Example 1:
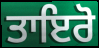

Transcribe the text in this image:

ਤਾਇਰੋ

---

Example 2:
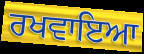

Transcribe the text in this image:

ਰਖਵਾਇਆ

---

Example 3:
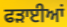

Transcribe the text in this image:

ਫੜਾਈਆਂ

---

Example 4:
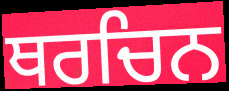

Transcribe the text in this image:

ਥਰਚਿਨ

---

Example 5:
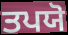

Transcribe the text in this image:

ਤਪਯੋ